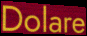
Dolare